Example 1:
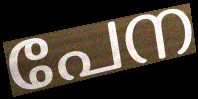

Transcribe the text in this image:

പേന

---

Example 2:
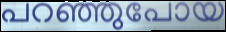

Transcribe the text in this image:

പറഞ്ഞുപോയ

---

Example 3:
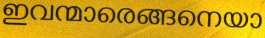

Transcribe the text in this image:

ഇവന്മാരെങ്ങനെയാ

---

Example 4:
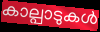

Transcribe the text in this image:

കാല്പാടുകൾ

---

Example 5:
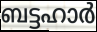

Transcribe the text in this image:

ബട്ടഹാർ